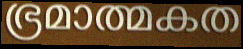
ഭ്രമാത്മകത